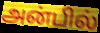
அன்பில்